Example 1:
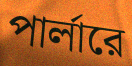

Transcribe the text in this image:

পার্লারে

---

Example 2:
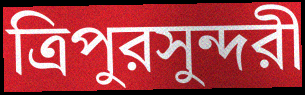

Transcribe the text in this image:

ত্রিপুরসুন্দরী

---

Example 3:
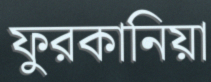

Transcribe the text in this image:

ফুরকানিয়া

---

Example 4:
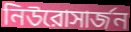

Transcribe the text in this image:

নিউরোসার্জন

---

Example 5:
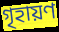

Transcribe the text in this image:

গৃহায়ণ